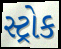
સ્ટ્રોક